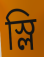
স্লি